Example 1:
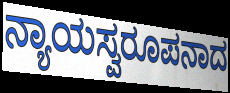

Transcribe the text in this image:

ನ್ಯಾಯಸ್ವರೂಪನಾದ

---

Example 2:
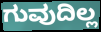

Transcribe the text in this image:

ಗುವುದಿಲ್ಲ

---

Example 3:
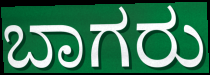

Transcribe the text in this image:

ಬಾಗರು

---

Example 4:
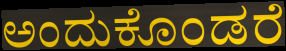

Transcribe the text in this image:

ಅಂದುಕೊಂಡರೆ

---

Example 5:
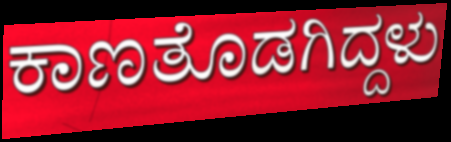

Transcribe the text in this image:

ಕಾಣತೊಡಗಿದ್ದಳು